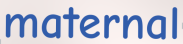
maternal